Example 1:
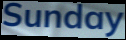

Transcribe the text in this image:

Sunday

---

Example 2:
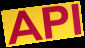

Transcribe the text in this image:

API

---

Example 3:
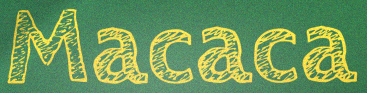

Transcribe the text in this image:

Macaca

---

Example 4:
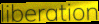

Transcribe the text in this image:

liberation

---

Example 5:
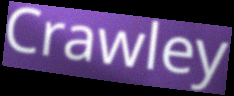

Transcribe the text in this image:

Crawley